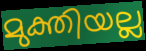
മുക്തിയല്ല